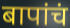
बापांचं